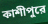
কাশীপুরে